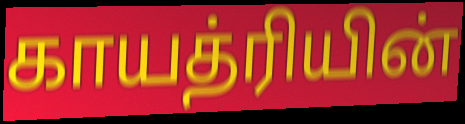
காயத்ரியின்